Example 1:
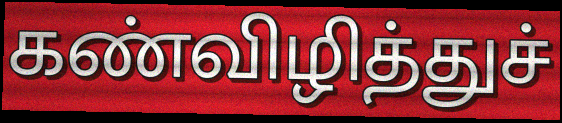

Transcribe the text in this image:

கண்விழித்துச்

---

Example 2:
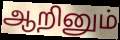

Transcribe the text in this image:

ஆறினும்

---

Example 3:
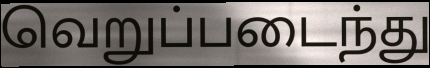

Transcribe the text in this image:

வெறுப்படைந்து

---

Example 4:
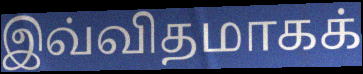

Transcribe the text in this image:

இவ்விதமாகக்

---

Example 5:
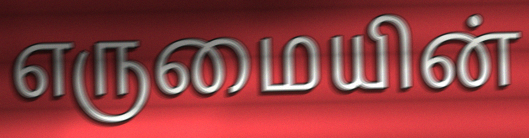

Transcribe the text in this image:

எருமையின்